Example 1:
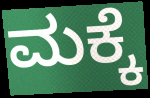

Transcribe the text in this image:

ಮಕ್ಕೆ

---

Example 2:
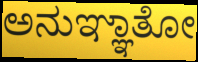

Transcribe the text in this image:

ಅನುಞ್ಞಾತೋ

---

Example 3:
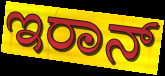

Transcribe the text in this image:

ಇರಾನ್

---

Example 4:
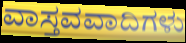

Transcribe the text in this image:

ವಾಸ್ತವವಾದಿಗಳು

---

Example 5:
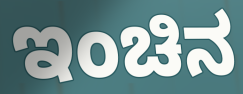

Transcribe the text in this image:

ಇಂಚಿನ